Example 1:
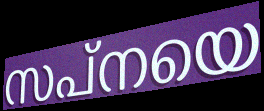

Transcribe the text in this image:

സപ്‌നയെ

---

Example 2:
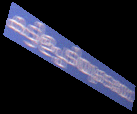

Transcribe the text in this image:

കട്ടിളപ്പടിയുടെയോ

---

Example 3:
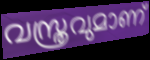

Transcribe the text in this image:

വസ്ത്രവുമാണ്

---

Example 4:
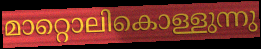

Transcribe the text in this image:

മാറ്റൊലികൊള്ളുന്നു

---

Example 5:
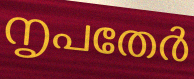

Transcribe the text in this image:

നൃപതേർ